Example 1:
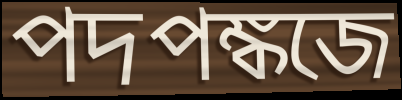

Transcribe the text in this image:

পদপঙ্কজে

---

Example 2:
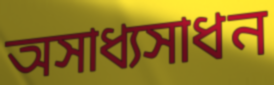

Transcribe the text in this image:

অসাধ্যসাধন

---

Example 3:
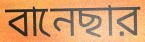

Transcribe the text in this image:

বানেছার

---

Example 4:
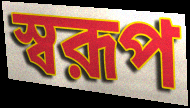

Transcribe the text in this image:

স্বরূপ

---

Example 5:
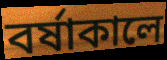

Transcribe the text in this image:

বর্ষাকালে